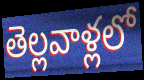
తెల్లవాళ్లలో